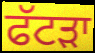
ਫੱਟੜਾ